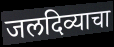
जलदिव्याचा